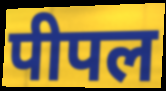
पीपल